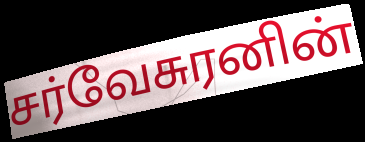
சர்வேசுரனின்